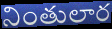
నింతులార